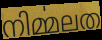
നിൎമ്മലത